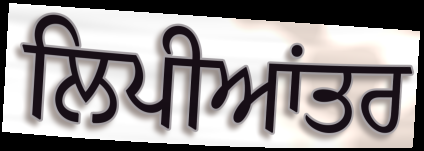
ਲਿਪੀਆਂਤਰ